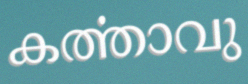
കൎത്താവു